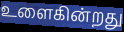
உளைகின்றது